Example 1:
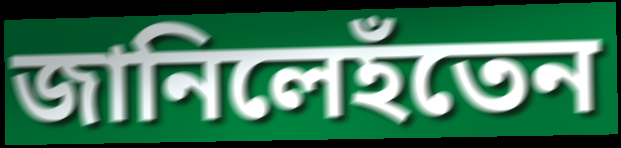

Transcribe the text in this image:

জানিলেহঁতেন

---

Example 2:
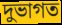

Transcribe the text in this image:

দুভাগত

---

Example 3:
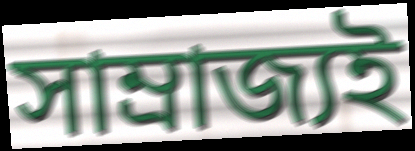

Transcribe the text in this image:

সাম্ৰাজ্যই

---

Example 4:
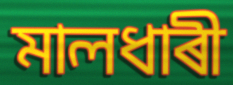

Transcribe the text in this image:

মালধাৰী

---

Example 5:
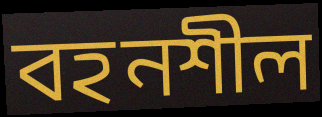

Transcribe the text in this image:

বহনশীল